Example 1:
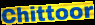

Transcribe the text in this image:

Chittoor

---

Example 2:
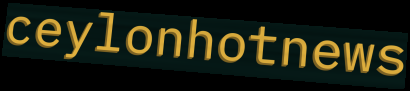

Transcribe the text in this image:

ceylonhotnews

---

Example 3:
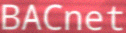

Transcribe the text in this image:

BACnet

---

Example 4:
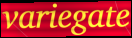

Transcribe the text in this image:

variegate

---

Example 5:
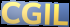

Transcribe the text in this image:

CGIL